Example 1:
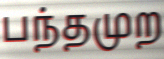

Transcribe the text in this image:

பந்தமுற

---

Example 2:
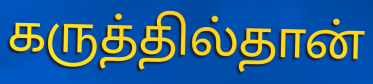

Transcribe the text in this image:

கருத்தில்தான்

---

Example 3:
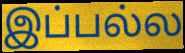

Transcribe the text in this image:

இப்பல்ல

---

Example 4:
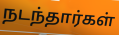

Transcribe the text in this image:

நடந்தார்கள்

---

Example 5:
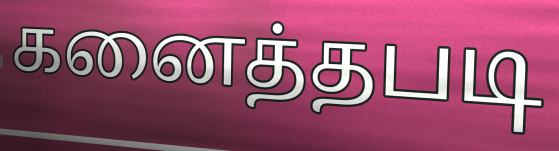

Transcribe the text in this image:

கனைத்தபடி